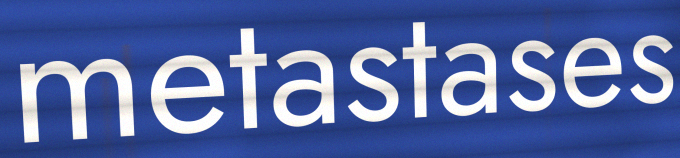
metastases